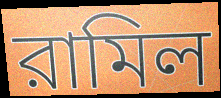
রামিল